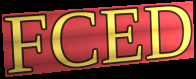
FCED